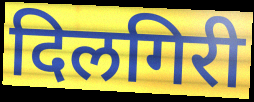
दिलगिरी